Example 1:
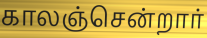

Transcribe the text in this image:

காலஞ்சென்றார்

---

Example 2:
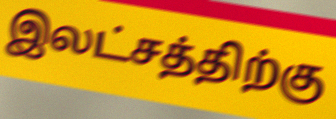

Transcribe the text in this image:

இலட்சத்திற்கு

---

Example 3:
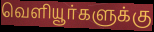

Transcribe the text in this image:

வெளியூர்களுக்கு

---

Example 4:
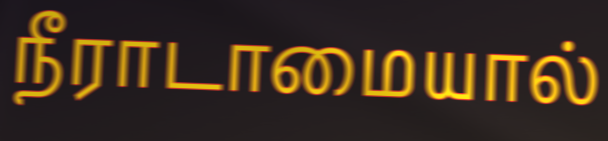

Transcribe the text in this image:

நீராடாமையால்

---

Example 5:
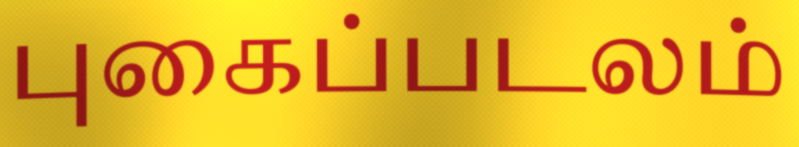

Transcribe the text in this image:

புகைப்படலம்